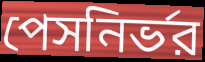
পেসনির্ভর